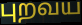
புறவய